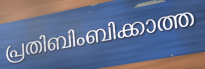
പ്രതിബിംബിക്കാത്ത